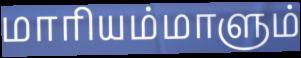
மாரியம்மாளும்